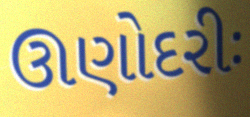
ઊણોદરીઃ